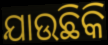
ଯାଉଛିକି